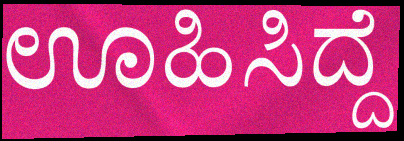
ಊಹಿಸಿದ್ದೆ